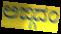
ಅಙ್ಗದಂ